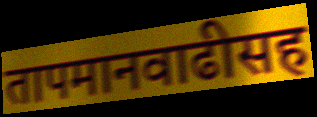
तापमानवाढीसह